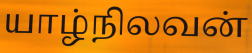
யாழ்நிலவன்